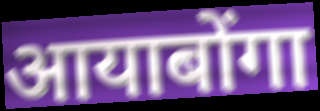
आयाबोंगा